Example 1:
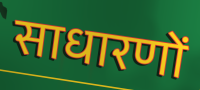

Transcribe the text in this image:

साधारणों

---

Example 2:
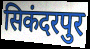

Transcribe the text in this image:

सिकंदरपुर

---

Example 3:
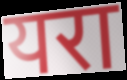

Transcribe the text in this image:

यरा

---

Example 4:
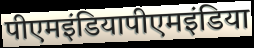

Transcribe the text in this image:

पीएमइंडियापीएमइंडिया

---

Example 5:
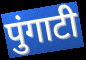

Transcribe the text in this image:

पुंगाटी